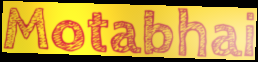
Motabhai